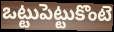
ఒట్టుపెట్టుకొంటె